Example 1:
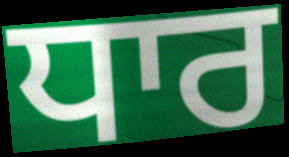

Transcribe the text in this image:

ਧਾਰ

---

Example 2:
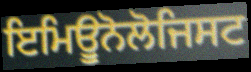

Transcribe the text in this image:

ਇਮਿਊਨੋਲੋਜਿਸਟ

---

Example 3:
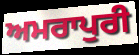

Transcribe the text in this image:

ਅਮਰਾਪੁਰੀ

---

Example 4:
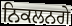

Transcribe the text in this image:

ਨਿਕਲਨਗੇ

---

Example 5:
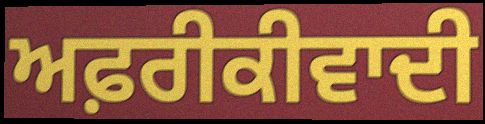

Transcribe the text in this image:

ਅਫ਼ਰੀਕੀਵਾਦੀ